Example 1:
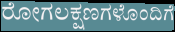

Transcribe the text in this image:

ರೋಗಲಕ್ಷಣಗಳೊಂದಿಗೆ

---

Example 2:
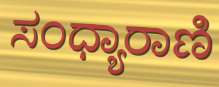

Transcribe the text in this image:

ಸಂಧ್ಯಾರಾಣಿ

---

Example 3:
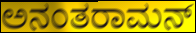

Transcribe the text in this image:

ಅನಂತರಾಮನ್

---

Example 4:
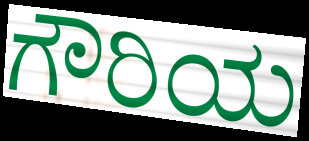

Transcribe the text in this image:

ಗೌರಿಯ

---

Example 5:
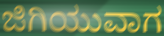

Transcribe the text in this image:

ಜಿಗಿಯುವಾಗ